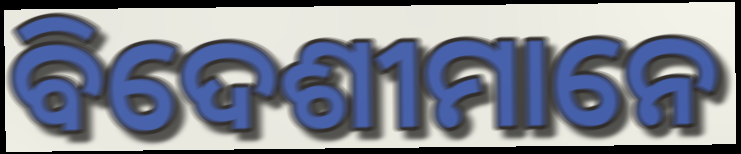
ବିଦେଶୀମାନେ